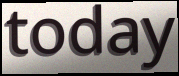
today